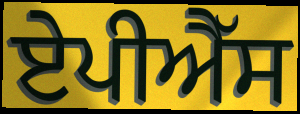
ਏਪੀਐੱਸ